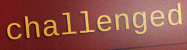
challenged